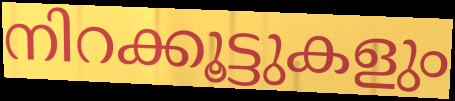
നിറക്കൂട്ടുകളും